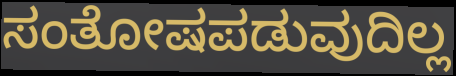
ಸಂತೋಷಪಡುವುದಿಲ್ಲ